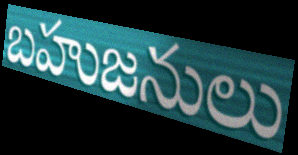
బహుజనులు